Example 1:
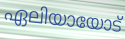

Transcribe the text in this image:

ഏലിയായോട്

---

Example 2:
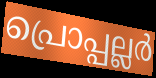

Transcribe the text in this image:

പ്രൊപ്പല്ലർ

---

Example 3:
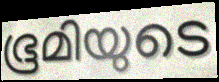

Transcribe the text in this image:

ഭൂമിയുടെ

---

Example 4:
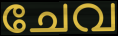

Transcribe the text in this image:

ചേവ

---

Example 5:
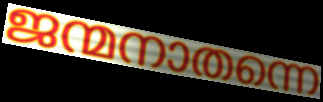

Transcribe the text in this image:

ജന്മനാതന്നെ